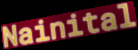
Nainital